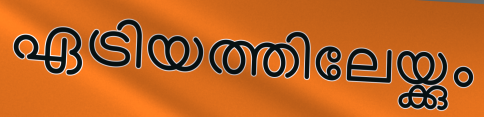
ഏട്രിയത്തിലേയ്ക്കും